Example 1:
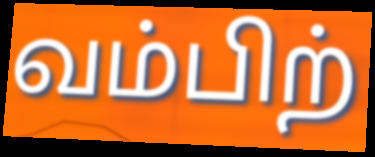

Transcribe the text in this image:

வம்பிற்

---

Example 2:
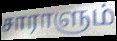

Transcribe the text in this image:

சாராளும்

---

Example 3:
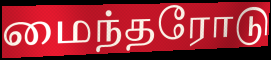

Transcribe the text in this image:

மைந்தரோடு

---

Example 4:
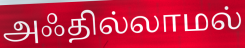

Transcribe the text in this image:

அஃதில்லாமல்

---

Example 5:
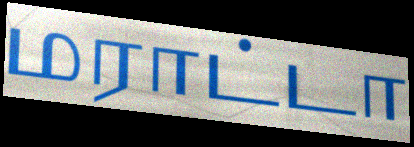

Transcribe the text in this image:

மராட்டா